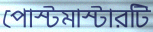
পোস্টমাস্টারটি